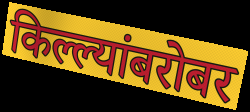
किल्ल्यांबरोबर